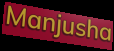
Manjusha